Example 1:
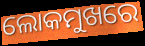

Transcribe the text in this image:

ଲୋକମୁଖରେ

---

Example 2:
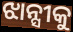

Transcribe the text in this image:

ଝାନ୍ସୀକୁ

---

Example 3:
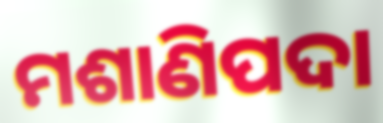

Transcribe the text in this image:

ମଶାଣିପଦା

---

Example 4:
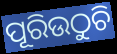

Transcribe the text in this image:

ପୂରିଉଠୁଚି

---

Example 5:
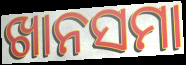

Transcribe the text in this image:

ଖାନସମା